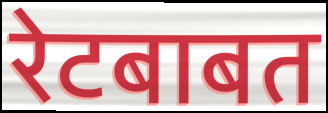
रेटबाबत